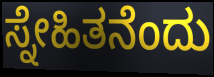
ಸ್ನೇಹಿತನೆಂದು